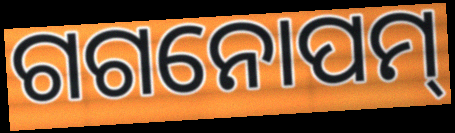
ଗଗନୋପମ୍